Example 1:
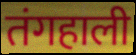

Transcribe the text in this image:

तंगहाली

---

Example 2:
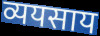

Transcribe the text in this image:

व्ययसाय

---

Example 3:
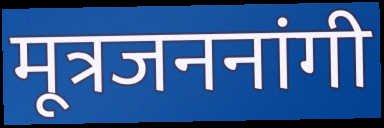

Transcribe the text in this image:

मूत्रजननांगी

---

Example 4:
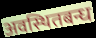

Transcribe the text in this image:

अवस्थितबन्ध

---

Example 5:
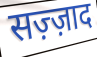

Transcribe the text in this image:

सज़्ज़ाद